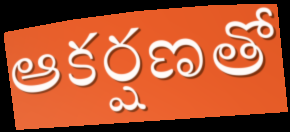
ఆకర్షణతో